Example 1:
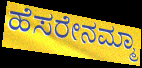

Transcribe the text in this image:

ಹೆಸರೇನಮ್ಮಾ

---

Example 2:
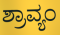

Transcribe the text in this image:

ಶ್ರಾವ್ಯಂ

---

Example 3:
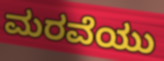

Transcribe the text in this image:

ಮರವೆಯು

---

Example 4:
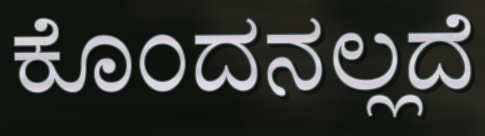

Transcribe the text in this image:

ಕೊಂದನಲ್ಲದೆ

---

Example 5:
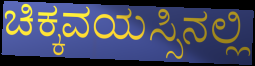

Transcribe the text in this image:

ಚಿಕ್ಕವಯಸ್ಸಿನಲ್ಲಿ